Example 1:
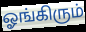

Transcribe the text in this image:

ஓங்கிரும்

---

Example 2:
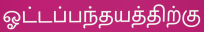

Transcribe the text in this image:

ஓட்டப்பந்தயத்திற்கு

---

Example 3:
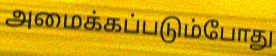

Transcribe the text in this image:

அமைக்கப்படும்போது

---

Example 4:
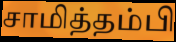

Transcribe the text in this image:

சாமித்தம்பி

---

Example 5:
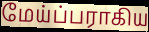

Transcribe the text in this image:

மேய்ப்பராகிய